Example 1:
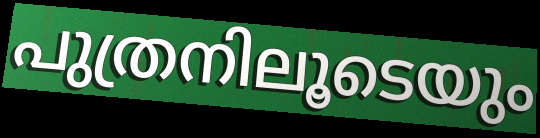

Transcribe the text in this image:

പുത്രനിലൂടെയും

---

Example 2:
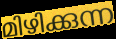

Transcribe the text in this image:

മിഴിക്കുന്ന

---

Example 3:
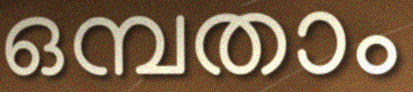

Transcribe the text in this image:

ഒമ്പതാം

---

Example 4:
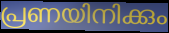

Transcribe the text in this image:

പ്രണയിനിക്കും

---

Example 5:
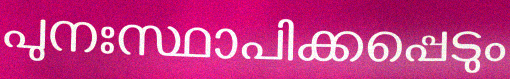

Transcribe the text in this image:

പുനഃസ്ഥാപിക്കപ്പെടും